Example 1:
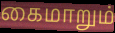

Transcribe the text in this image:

கைமாறும்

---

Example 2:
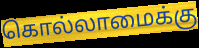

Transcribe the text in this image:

கொல்லாமைக்கு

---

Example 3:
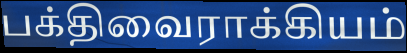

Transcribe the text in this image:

பக்திவைராக்கியம்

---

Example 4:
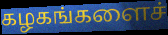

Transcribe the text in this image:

கழகங்களைச்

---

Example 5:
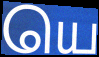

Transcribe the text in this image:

யெ